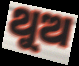
ଥୁଅ